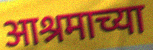
आश्रमाच्या